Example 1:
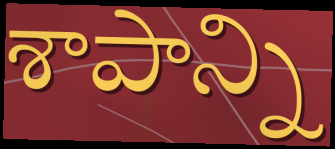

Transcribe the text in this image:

శాపాన్ని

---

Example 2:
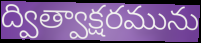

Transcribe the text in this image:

ద్విత్వాక్షరమును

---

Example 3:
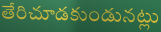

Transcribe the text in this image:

తేరిచూడకుండునట్లు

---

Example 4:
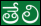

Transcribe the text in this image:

తేలి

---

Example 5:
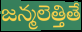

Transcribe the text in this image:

జన్మలెత్తితే